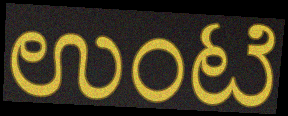
ಉಂಟೆ